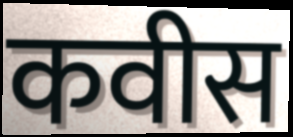
कवीस